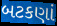
બટકણાં